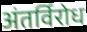
अंतर्विरोध